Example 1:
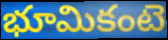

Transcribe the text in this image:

భూమికంటె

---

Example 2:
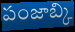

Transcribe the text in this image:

పంజాబ్కి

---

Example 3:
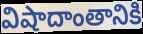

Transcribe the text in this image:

విషాదాంతానికి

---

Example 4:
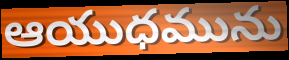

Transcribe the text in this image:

ఆయుధమును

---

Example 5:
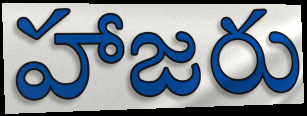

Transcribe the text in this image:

హాజరు